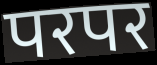
परपर